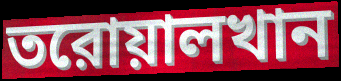
তরোয়ালখান